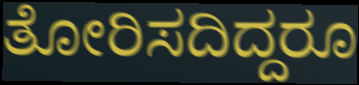
ತೋರಿಸದಿದ್ದರೂ